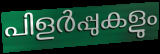
പിളർപ്പുകളും